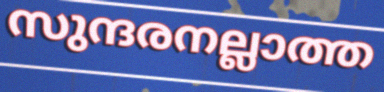
സുന്ദരനല്ലാത്ത